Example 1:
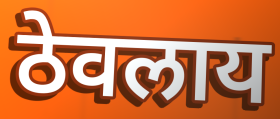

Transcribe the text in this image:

ठेवलाय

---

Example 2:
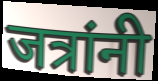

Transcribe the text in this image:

जत्रांनी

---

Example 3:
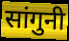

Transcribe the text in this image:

सांगुनी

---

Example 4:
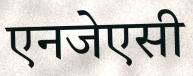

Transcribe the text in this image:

एनजेएसी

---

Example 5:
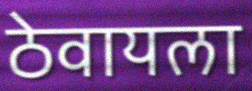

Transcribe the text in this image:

ठेवायला